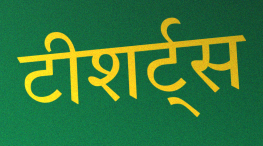
टीशर्ट्स